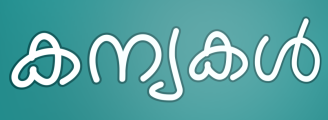
കന്യകൾ